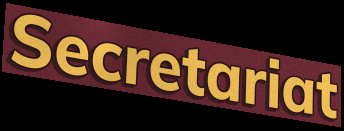
Secretariat